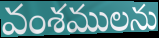
వంశములను